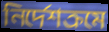
নির্দেশক্রমে